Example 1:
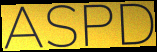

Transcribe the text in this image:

ASPD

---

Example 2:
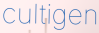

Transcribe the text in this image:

cultigen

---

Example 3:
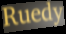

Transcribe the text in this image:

Ruedy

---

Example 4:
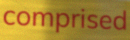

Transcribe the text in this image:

comprised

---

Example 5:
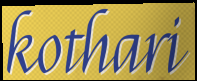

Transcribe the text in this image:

kothari